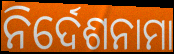
ନିର୍ଦେଶନାମା